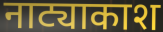
नाट्याकाश